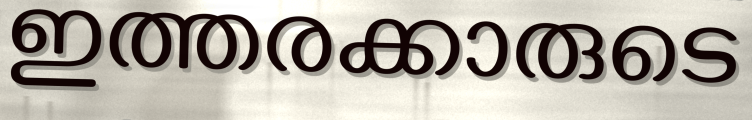
ഇത്തരക്കാരുടെ